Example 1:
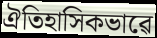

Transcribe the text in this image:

ঐতিহাসিকভাৱে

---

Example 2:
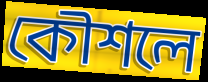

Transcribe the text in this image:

কৌশলে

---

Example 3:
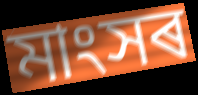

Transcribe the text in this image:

মাংসৰ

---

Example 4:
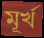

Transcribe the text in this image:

মূৰ্খ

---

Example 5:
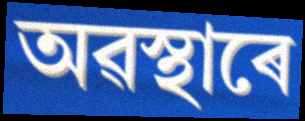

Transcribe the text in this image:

অৱস্থাৰে